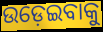
ଉଡ଼େଇବାକୁ